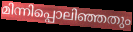
മിന്നിപ്പൊലിഞ്ഞതും